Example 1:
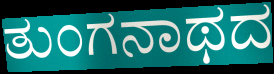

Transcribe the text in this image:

ತುಂಗನಾಥದ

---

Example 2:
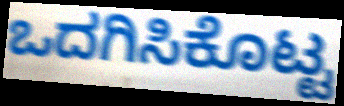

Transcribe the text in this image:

ಒದಗಿಸಿಕೊಟ್ಟ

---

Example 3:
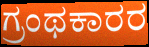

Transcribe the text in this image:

ಗ್ರಂಥಕಾರರ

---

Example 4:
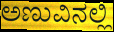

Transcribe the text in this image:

ಅಣುವಿನಲ್ಲಿ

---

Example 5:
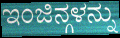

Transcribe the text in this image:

ಇಂಜಿನ್ಗಳನ್ನು